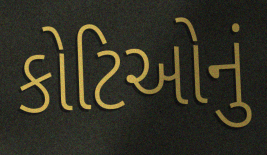
કોટિઓનું